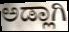
ಅಡ್ಲಾಗಿ